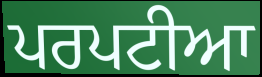
ਪਰਪਟੀਆ